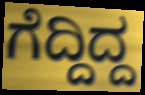
ಗೆದ್ದಿದ್ದ